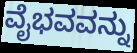
ವೈಭವವನ್ನು